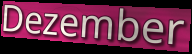
Dezember